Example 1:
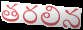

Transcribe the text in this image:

తరలిన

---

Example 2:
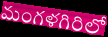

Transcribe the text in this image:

మంగళగిరిలో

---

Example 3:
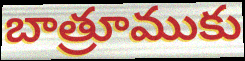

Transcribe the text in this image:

బాత్రూముకు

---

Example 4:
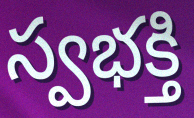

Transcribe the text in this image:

స్వభక్తి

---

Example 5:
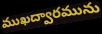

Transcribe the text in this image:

ముఖద్వారమును